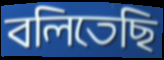
বলিতেছি